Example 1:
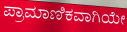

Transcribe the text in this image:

ಪ್ರಾಮಾಣಿಕವಾಗಿಯೇ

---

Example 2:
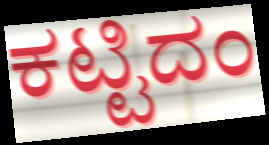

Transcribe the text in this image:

ಕಟ್ಟಿದಂ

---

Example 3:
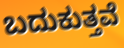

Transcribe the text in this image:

ಬದುಕುತ್ತವೆ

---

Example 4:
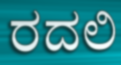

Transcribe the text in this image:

ರದಲಿ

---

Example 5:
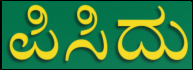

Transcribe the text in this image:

ಪಿಸಿದು